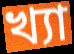
খ্যা